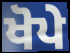
ਖੋਪੇ